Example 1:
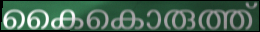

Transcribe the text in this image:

കൈകൊരുത്ത്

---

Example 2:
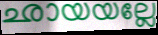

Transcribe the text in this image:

ഛായയല്ലേ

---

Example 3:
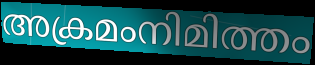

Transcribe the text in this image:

അക്രമംനിമിത്തം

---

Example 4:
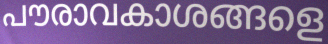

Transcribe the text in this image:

പൗരാവകാശങ്ങളെ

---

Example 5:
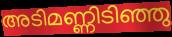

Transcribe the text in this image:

അടിമണ്ണിടിഞ്ഞു